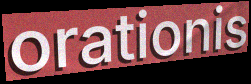
orationis